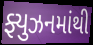
ફ્યુઝનમાંથી